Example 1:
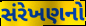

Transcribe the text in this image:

સંરેખણનો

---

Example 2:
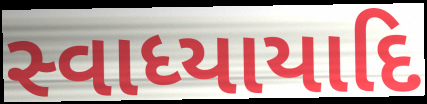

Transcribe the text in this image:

સ્વાધ્યાયાદિ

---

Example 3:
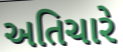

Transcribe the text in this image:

અતિચારે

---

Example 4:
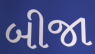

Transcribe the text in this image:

બીજા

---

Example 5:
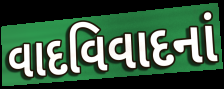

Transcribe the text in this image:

વાદવિવાદનાં